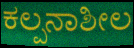
ಕಲ್ಪನಾಶೀಲ